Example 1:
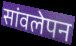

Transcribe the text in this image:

सांवलेपन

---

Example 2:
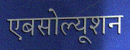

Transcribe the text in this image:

एबसोल्यूशन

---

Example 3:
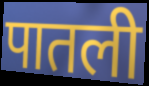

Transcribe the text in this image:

पातली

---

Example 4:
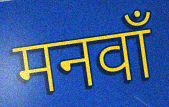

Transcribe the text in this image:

मनवाँ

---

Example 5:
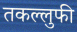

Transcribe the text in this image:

तकल्लुफी